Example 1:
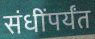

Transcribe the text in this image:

संधींपर्यंत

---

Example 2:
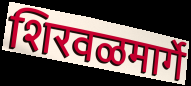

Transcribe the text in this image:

शिरवळमार्गे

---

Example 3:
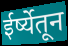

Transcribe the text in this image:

ईर्ष्येतून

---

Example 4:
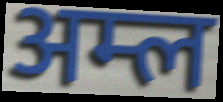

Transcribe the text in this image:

अम्ल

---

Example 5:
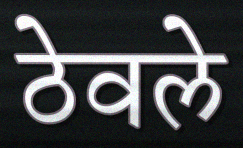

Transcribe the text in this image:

ठेवले